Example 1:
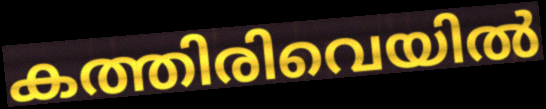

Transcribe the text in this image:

കത്തിരിവെയിൽ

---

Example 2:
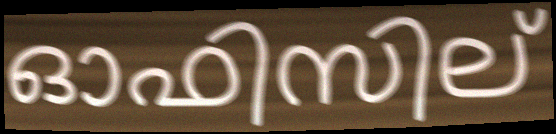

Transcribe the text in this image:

ഓഫിസില്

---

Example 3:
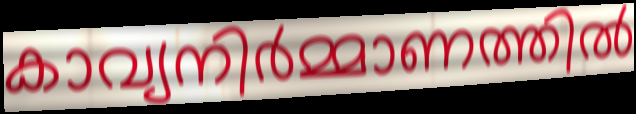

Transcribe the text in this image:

കാവ്യനിർമ്മാണത്തിൽ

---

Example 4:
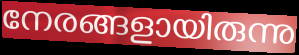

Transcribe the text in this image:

നേരങ്ങളായിരുന്നു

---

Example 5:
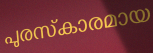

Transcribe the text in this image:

പുരസ്‌കാരമായ